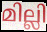
മില്ലി